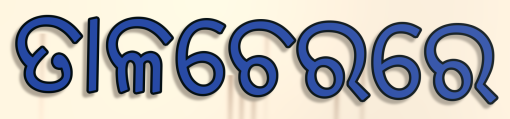
ତାଳଚେରରେ